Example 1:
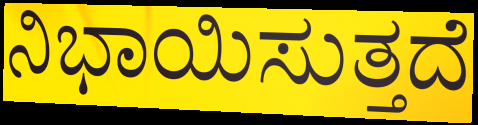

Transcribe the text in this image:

ನಿಭಾಯಿಸುತ್ತದೆ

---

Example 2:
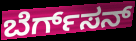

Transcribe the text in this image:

ಬೆರ್ಗ್‌ಸನ್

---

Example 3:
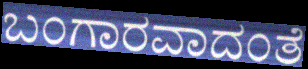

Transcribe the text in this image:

ಬಂಗಾರವಾದಂತೆ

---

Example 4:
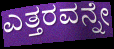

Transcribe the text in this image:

ಎತ್ತರವನ್ನೇ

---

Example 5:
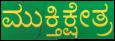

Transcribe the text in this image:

ಮುಕ್ತಿಕ್ಷೇತ್ರ